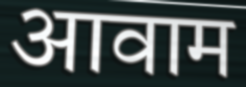
आवाम